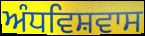
ਅੰਧਵਿਸ਼ਵਾਸ